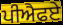
ਪੀਐਫਏ